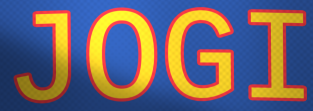
JOGI